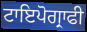
ਟਾਇਪੋਗ੍ਰਾਫੀ